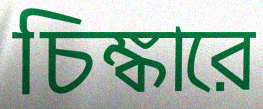
চিঙ্কারে